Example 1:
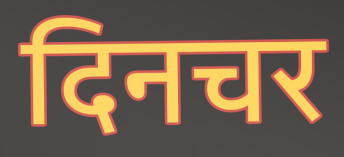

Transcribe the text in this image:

दिनचर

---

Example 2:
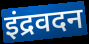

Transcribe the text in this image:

इंद्रवदन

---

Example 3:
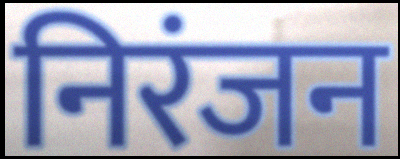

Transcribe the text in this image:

निरंजन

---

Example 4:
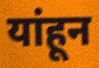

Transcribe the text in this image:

यांहून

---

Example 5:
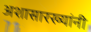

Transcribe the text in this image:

अशासारख्यांनी